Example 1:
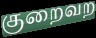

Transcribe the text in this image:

குறைவற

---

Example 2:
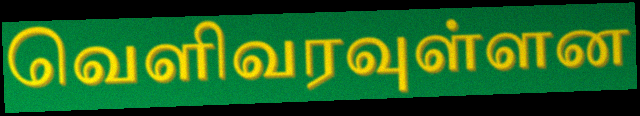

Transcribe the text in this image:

வெளிவரவுள்ளன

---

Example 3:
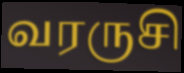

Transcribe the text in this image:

வரருசி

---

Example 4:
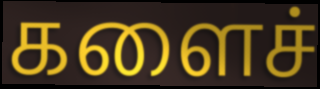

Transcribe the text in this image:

களைச்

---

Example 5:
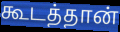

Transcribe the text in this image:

கூடத்தான்